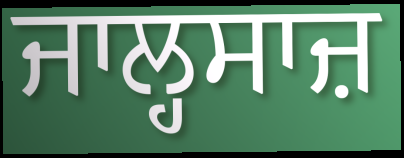
ਜਾਲ੍ਹਸਾਜ਼